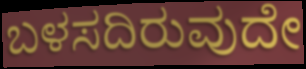
ಬಳಸದಿರುವುದೇ